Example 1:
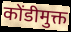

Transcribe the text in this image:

कोंडीमुक्त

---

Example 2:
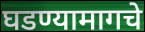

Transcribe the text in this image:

घडण्यामागचे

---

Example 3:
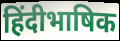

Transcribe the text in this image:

हिंदीभाषिक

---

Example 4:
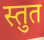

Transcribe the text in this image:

स्तुत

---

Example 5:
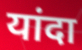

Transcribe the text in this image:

यांदा